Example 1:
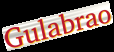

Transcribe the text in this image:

Gulabrao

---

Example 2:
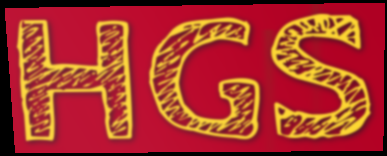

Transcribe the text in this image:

HGS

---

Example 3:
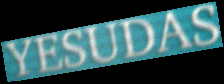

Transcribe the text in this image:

YESUDAS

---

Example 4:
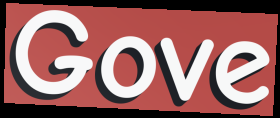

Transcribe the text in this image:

Gove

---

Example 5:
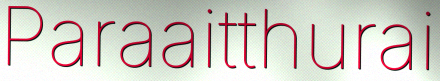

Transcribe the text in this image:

Paraaitthurai